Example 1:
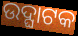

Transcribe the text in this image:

ଉଦ୍ଘାଟକ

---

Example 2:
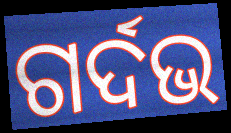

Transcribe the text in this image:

ଗର୍ଦଭ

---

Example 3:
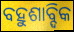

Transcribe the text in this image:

ବହୁଶାବ୍ଦିକ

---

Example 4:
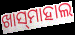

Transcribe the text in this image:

ଖାସ୍‌ମାହାଲ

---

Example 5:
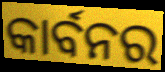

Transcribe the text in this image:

କାର୍ବନର